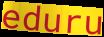
eduru